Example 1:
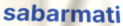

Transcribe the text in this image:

sabarmati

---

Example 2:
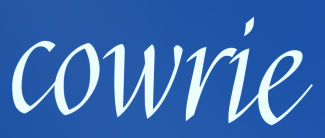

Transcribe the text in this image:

cowrie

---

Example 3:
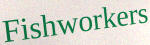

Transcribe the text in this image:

Fishworkers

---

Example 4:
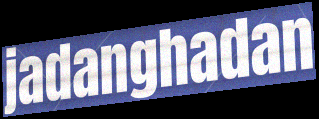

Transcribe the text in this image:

jadanghadan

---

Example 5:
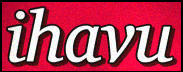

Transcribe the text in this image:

ihavu